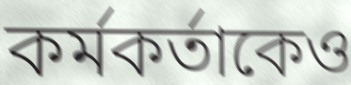
কর্মকর্তাকেও